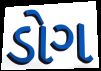
ડોગ